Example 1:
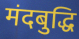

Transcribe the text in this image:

मंदबुद्धि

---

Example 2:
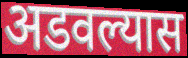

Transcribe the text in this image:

अडवल्यास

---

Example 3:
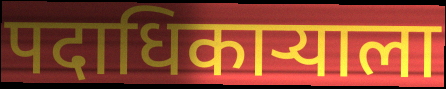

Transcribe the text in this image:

पदाधिकाऱ्याला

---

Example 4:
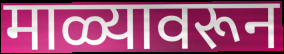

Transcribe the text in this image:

माळ्यावरून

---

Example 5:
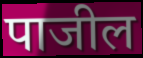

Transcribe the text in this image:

पाजील